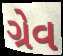
ગ્રેવ